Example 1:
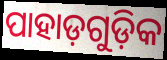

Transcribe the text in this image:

ପାହାଡ଼ଗୁଡ଼ିକ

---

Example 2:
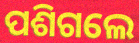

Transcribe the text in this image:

ପଶିଗଲେ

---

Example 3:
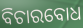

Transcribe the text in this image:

ବିଚାରବୋଧ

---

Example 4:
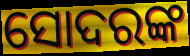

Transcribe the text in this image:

ସୋଦରଙ୍କ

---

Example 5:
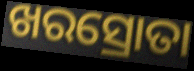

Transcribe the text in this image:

ଖରସ୍ରୋତା